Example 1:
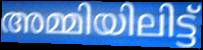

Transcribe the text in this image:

അമ്മിയിലിട്ട്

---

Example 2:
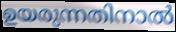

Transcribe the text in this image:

ഉയരുന്നതിനാൽ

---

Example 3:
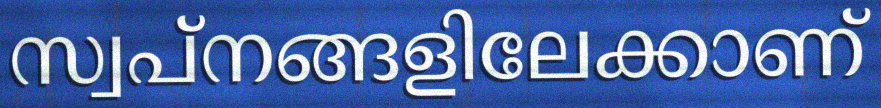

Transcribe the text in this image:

സ്വപ്നങ്ങളിലേക്കാണ്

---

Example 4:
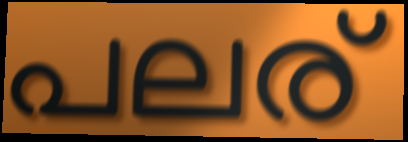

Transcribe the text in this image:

പലര്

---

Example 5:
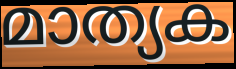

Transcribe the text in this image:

മാത്യക